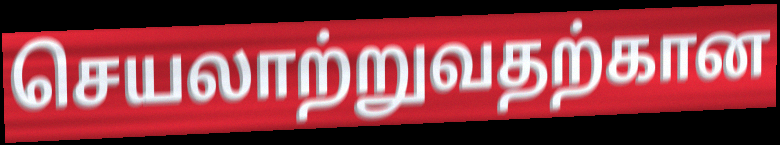
செயலாற்றுவதற்கான